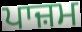
ਪਾਜ਼ਮ